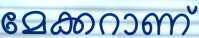
മേക്കറാണ്